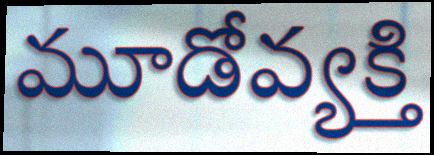
మూడోవ్యక్తి